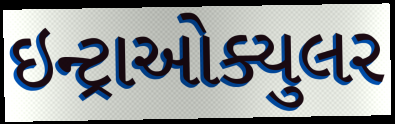
ઇન્ટ્રાઓક્યુલર